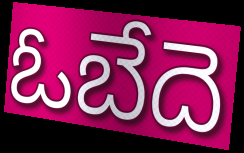
ఓబేదె